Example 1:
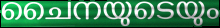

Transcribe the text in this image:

ചൈനയുടെയും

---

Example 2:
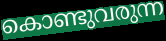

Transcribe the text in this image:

കൊണ്ടുവരുന്ന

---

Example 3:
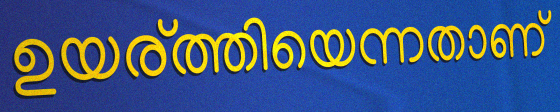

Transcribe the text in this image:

ഉയര്ത്തിയെന്നതാണ്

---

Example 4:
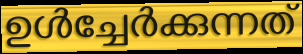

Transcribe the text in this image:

ഉൾച്ചേർക്കുന്നത്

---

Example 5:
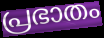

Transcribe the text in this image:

പ്രഭാതം